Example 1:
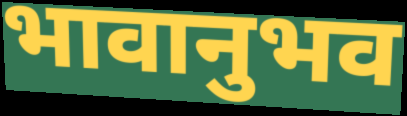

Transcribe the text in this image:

भावानुभव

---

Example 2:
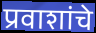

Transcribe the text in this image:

प्रवाशांचे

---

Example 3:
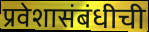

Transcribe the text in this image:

प्रवेशासंबंधीची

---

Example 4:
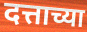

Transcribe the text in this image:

दत्ताच्या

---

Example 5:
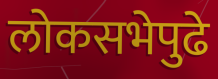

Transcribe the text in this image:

लोकसभेपुढे